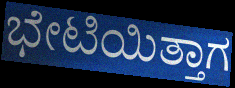
ಭೇಟಿಯಿತ್ತಾಗ